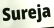
Sureja